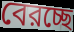
বেরচ্ছে